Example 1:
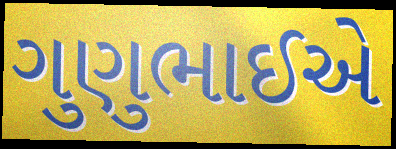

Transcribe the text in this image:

ગુણુભાઈએ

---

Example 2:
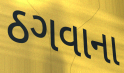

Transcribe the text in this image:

ઠગવાના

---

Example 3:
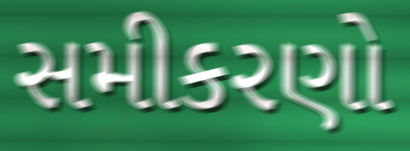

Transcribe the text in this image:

સમીકરણો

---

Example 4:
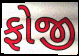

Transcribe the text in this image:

ફોજી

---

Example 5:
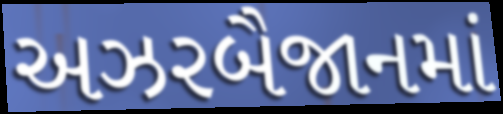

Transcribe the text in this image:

અઝરબૈજાનમાં